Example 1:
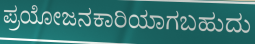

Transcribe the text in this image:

ಪ್ರಯೋಜನಕಾರಿಯಾಗಬಹುದು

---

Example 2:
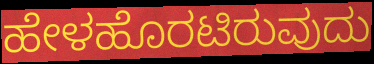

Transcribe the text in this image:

ಹೇಳಹೊರಟಿರುವುದು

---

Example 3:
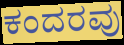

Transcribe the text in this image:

ಕಂದರವು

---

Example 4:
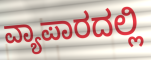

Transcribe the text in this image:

ವ್ಯಾಪಾರದಲ್ಲಿ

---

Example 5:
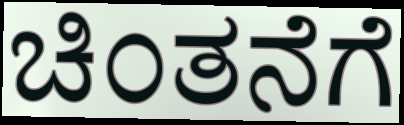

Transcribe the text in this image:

ಚಿಂತನೆಗೆ